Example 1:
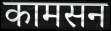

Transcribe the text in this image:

कामसन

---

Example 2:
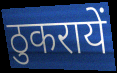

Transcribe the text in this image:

ठुकरायें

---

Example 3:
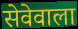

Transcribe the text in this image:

सेवेवाला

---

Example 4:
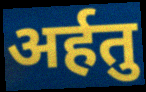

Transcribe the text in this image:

अर्हतु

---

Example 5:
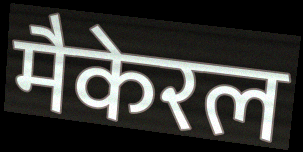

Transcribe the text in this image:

मैकेरल